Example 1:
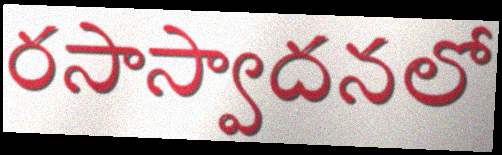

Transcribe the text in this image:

రసాస్వాదనలో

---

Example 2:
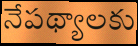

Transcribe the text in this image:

నేపథ్యాలకు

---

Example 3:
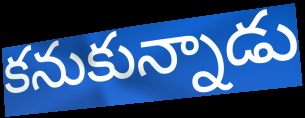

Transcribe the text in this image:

కనుకున్నాడు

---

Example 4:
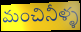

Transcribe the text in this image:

మంచినీళ్ళ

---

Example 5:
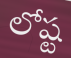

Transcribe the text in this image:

లోష్ట